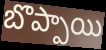
బొప్పాయి